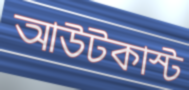
আউটকাস্ট